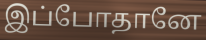
இப்போதானே